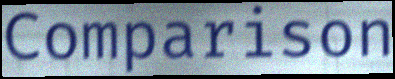
Comparison